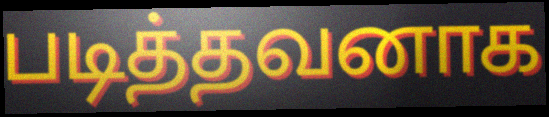
படித்தவனாக